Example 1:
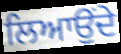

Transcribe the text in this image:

ਲਿਆਉਂਦੇ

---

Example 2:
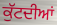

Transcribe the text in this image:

ਕੁੱਟਦੀਆਂ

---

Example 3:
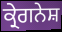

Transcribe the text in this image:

ਕ੍ਰੇਗਨੇਸ਼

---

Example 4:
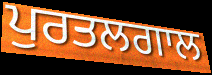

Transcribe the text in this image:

ਪੁਰਤਲਗਾਲ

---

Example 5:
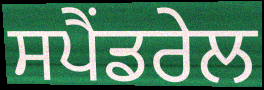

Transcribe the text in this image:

ਸਪੈਂਡਰੇਲ